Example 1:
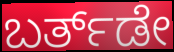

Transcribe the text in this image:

ಬರ್ತ್‌ಡೇ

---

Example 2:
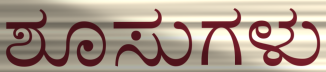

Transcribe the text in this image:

ಶೂಸುಗಳು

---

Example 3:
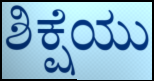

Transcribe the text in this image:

ಶಿಕ್ಷೆಯು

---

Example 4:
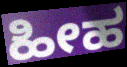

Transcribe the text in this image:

ಹೀಹ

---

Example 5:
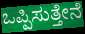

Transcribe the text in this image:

ಒಪ್ಪಿಸುತ್ತೇನೆ